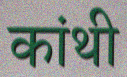
कांथी